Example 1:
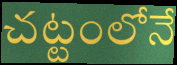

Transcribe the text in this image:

చట్టంలోనే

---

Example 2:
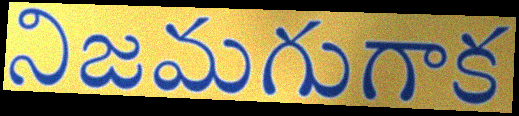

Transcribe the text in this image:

నిజమగుగాక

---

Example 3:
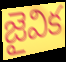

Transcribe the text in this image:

జైవిక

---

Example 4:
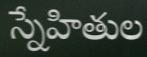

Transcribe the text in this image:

స్నేహితుల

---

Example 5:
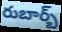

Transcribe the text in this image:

రుబార్బ్